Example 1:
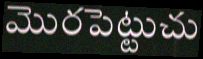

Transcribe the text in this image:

మొరపెట్టుచు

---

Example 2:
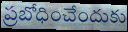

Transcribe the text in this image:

ప్రబోధించేందుకు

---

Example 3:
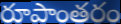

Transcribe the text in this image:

రూపాంతరం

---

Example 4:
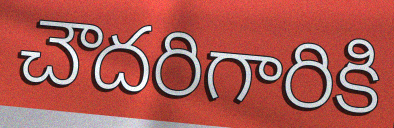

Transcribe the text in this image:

చౌదరిగారికి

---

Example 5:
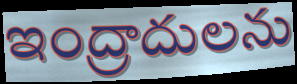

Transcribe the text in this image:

ఇంద్రాదులను